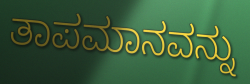
ತಾಪಮಾನವನ್ನು